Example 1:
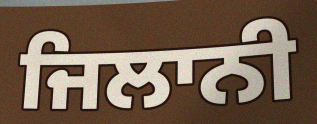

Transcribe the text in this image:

ਜਿਲਾਨੀ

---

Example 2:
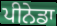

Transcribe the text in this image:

ਪੀਨੇਡਾ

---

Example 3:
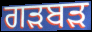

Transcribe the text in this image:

ਗੜਬੜ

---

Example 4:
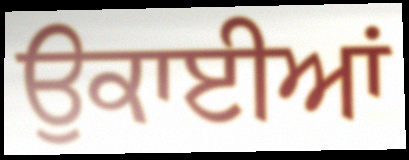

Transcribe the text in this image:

ਉਕਾਈਆਂ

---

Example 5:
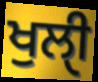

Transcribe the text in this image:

ਖੁਲੀੑ